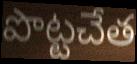
పొట్టచేత